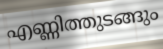
എണ്ണിത്തുടങ്ങും